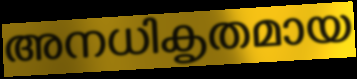
അനധികൃതമായ